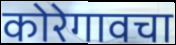
कोरेगावचा